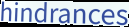
hindrances